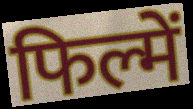
फिल्‍में